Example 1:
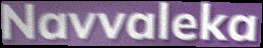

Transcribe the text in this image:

Navvaleka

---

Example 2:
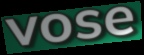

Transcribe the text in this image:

vose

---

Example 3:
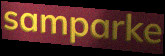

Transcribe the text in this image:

samparke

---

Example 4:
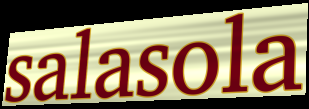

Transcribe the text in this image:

salasola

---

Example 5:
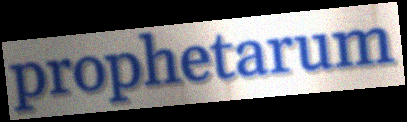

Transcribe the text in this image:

prophetarum